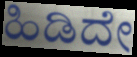
ಹಿಡಿದೇ